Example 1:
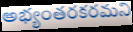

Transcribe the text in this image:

అభ్యంతరకరమని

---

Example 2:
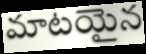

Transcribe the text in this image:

మాటయైన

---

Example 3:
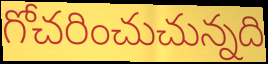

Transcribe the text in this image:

గోచరించుచున్నది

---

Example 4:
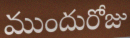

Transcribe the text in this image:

ముందురోజు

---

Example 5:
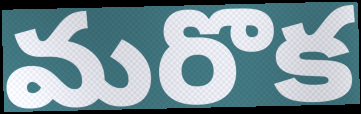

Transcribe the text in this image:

మరొక